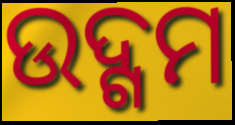
ଉଦ୍ଗମ